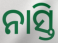
ନାସ୍ତି